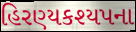
હિરણ્યકશ્યપના